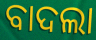
ବାଦଲା